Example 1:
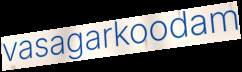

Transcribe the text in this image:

vasagarkoodam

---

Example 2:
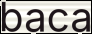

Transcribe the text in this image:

baca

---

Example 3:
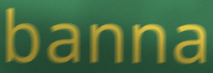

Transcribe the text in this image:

banna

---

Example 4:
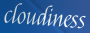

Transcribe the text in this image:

cloudiness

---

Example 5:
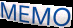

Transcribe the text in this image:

MEMO